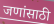
जणांसाठी